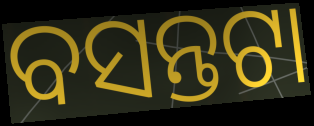
ବସନ୍ତଟା